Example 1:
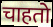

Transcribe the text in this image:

चाहतो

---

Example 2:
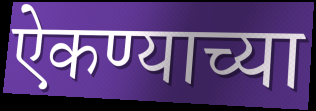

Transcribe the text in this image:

ऐकण्याच्या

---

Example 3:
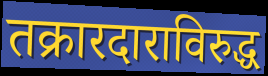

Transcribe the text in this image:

तक्रारदाराविरुद्ध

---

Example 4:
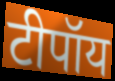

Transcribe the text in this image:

टीपॉय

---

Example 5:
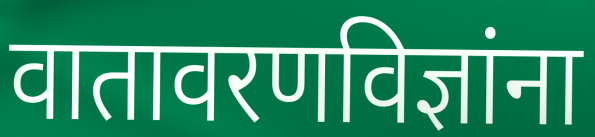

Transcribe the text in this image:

वातावरणविज्ञांना